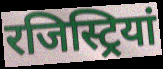
रजिस्ट्रियां